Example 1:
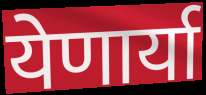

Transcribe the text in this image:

येणार्या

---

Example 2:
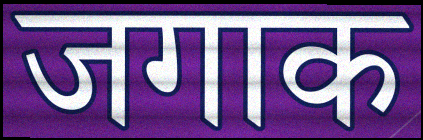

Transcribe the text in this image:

जगाक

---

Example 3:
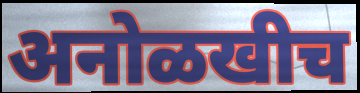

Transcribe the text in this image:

अनोळखीच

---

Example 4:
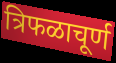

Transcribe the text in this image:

त्रिफळाचूर्ण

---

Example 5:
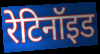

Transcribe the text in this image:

रेटिनॉइड